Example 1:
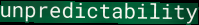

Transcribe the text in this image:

unpredictability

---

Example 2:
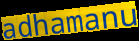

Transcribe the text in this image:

adhamanu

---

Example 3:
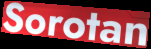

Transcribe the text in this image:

Sorotan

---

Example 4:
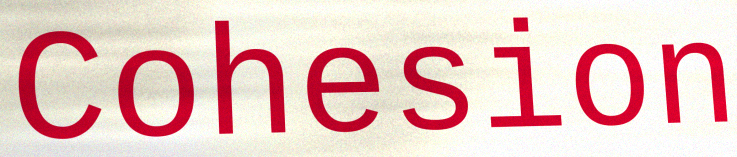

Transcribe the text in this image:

Cohesion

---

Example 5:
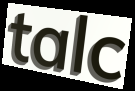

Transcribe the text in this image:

talc